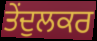
ਤੇਂਦੁਲਕਰ